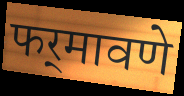
फर्मावणे